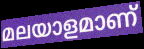
മലയാളമാണ്